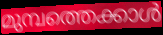
മുമ്പത്തെക്കാൾ